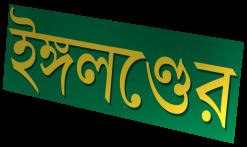
ইঙ্গলণ্ডের